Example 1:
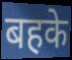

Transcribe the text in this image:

बहके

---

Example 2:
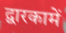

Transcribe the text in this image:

द्वारकामें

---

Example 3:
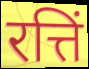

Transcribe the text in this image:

रत्तिं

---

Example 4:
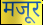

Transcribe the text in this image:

मजूर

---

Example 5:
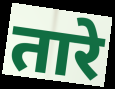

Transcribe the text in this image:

तारे